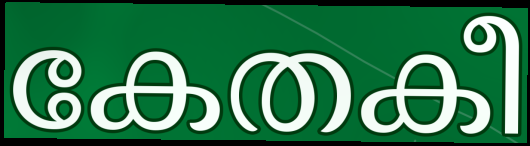
കേതകീ